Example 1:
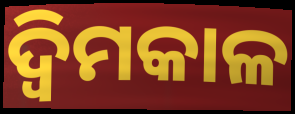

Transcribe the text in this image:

ଦ୍ବିମକାଳ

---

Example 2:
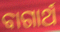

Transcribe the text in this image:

ବାଗାର୍ଥ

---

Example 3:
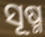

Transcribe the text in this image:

ସୂଷ୍ମ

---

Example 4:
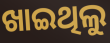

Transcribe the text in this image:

ଖାଇଥିଲୁ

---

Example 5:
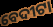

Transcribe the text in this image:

ବେଦୀଟା